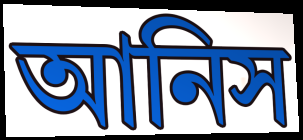
আনিস